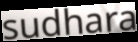
sudhara